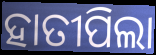
ହାତୀପିଲା